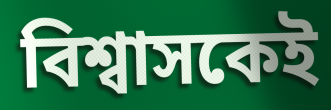
বিশ্বাসকেই